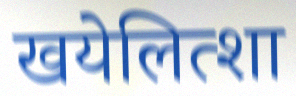
खयेलित्शा